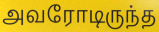
அவரோடிருந்த